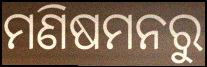
ମଣିଷମନରୁ